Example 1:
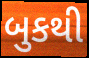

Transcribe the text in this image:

બુકથી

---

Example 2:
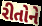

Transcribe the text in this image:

રીતોને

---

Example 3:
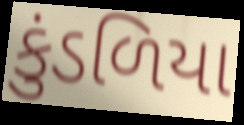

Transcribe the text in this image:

કુંડળિયા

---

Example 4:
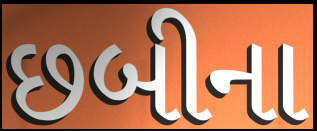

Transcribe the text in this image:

છબીના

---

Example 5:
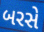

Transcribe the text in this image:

બરસે